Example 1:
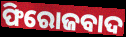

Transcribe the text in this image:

ଫିରୋଜବାଦ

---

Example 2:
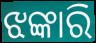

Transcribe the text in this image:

ଝଙ୍କାରି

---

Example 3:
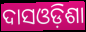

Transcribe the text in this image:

ଦାସଓଡ଼ିଶା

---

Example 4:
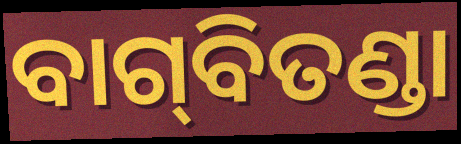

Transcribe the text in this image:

ବାଗ୍‍ବିତଣ୍ଡା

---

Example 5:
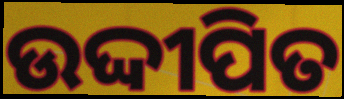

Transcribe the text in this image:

ଉଦ୍ଦୀପିତ